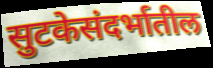
सुटकेसंदर्भातील